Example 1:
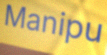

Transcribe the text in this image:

Manipu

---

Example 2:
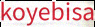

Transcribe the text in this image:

koyebisa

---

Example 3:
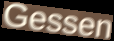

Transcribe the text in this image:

Gessen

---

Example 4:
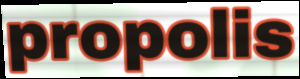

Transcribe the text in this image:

propolis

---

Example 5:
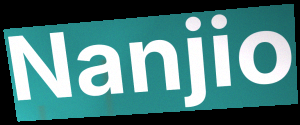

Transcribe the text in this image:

Nanjio